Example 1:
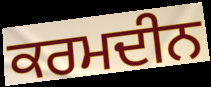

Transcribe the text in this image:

ਕਰਮਦੀਨ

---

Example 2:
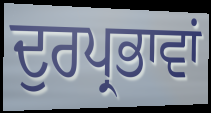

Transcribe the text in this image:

ਦੁਰਪ੍ਰਭਾਵਾਂ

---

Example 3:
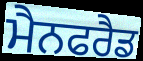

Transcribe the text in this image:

ਮੈਨਫਰੈਡ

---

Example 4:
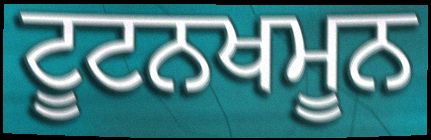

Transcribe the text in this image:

ਟੂਟਨਖਮੂਨ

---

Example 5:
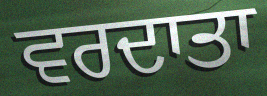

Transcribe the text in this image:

ਵਰਦਾਤਾ